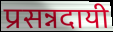
प्रसन्नदायी